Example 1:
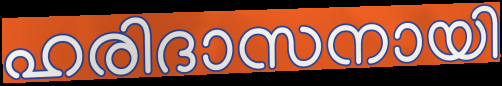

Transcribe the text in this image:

ഹരിദാസനായി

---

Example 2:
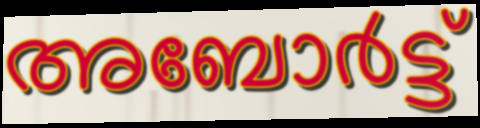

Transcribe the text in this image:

അബോർട്ട്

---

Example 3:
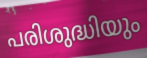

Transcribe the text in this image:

പരിശുദ്ധിയും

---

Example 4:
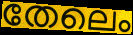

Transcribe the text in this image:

തേലെം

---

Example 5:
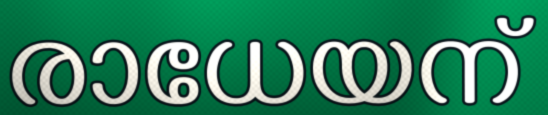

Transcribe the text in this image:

രാധേയന്